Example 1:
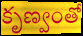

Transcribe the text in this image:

కృణ్వంతో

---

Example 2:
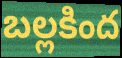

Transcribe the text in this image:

బల్లకింద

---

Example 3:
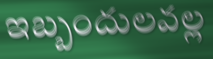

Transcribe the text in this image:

ఇబ్బందులవల్ల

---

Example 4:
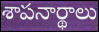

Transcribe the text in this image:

శాపనార్థాలు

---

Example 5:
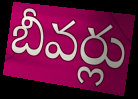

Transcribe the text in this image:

బీవర్లు